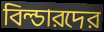
বিল্ডারদের